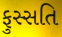
ફુસ્સતિ